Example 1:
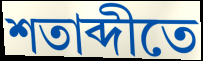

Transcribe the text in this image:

শতাব্দীতে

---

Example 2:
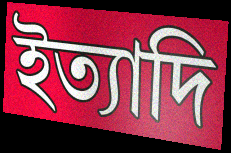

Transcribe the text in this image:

ইত্যাদি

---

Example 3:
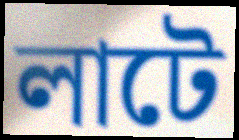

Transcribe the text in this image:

লাটে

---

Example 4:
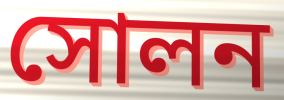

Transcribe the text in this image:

সোলন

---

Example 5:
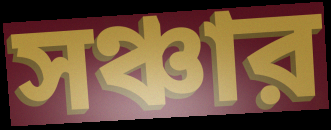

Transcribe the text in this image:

সঞ্চার